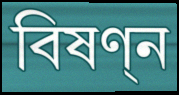
বিষণ্ন